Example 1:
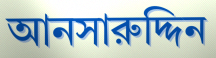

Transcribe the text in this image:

আনসারুদ্দিন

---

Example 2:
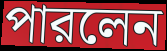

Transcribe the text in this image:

পারলেন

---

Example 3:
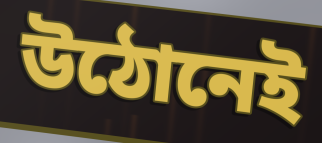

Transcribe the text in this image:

উঠোনেই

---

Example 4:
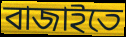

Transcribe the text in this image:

বাজাইতে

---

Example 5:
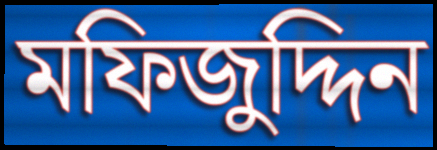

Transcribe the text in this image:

মফিজুদ্দিন